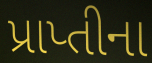
પ્રાપ્તીના